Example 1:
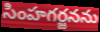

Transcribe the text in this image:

సింహగర్జనను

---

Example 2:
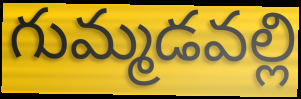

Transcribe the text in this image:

గుమ్మడవల్లి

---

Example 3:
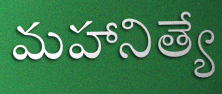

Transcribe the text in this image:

మహానిత్యే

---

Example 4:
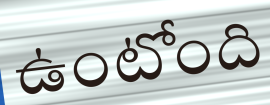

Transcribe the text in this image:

ఉంటోంది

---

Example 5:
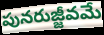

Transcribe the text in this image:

పునరుజ్జీవమే